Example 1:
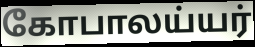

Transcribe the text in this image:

கோபாலய்யர்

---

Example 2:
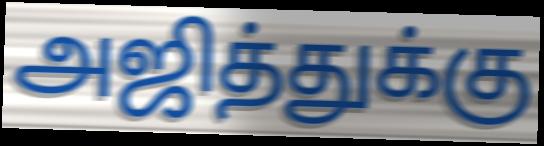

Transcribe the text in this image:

அஜித்துக்கு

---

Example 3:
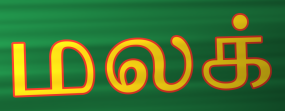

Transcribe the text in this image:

மலக்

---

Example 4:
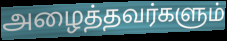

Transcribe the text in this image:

அழைத்தவர்களும்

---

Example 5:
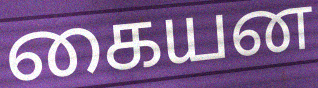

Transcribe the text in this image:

கையன